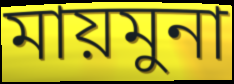
মায়মুনা